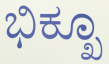
ಭಿಕ್ಖೂ